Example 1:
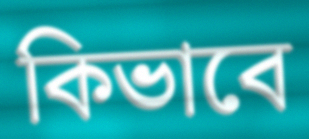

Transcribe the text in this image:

কিভাবে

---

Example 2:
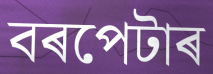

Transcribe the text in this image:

বৰপেটাৰ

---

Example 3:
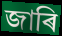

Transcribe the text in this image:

জাৰি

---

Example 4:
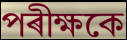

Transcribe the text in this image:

পৰীক্ষকে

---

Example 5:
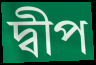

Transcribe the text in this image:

দ্বীপ